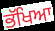
ਭੱਖਿਆ